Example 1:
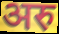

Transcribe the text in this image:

अरु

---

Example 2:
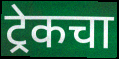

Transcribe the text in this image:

ट्रेकचा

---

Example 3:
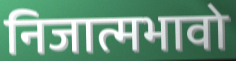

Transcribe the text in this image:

निजात्मभावो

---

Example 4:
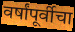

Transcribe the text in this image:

वर्षांपूर्वीचा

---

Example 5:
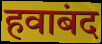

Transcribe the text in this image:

हवाबंद